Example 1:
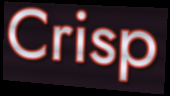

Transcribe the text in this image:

Crisp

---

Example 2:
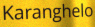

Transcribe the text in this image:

Karanghelo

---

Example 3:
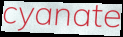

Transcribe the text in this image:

cyanate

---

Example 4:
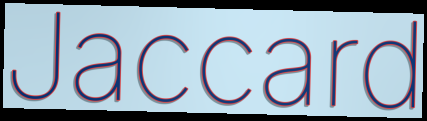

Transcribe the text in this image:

Jaccard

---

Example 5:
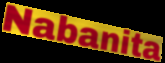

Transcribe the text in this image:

Nabanita